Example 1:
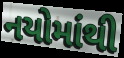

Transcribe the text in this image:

નયોમાંથી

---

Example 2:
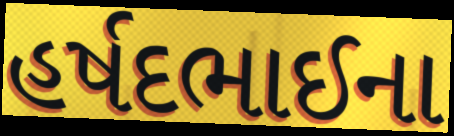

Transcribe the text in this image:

હર્ષદભાઈના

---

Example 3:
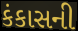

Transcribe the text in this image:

કંકાસની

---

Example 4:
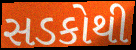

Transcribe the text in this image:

સડકોથી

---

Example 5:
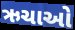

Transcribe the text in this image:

ઋચાઓ